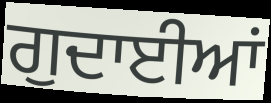
ਗੁਦਾਈਆਂ